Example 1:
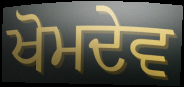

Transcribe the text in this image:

ਖੋਮਦੇਵ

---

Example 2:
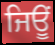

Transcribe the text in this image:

ਜਿਊਂ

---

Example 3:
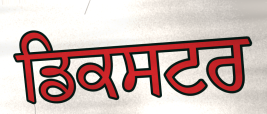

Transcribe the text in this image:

ਡਿਕਸਟਰ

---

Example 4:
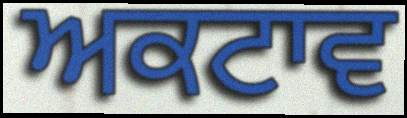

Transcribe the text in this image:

ਅਕਟਾਵ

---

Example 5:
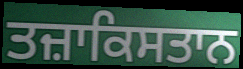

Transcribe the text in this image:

ਤਜ਼ਾਕਿਸਤਾਨ